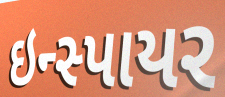
ઇન્સ્પાયર